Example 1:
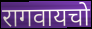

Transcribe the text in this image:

रागवायचो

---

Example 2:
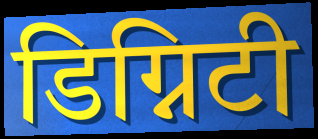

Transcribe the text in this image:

डिग्निटी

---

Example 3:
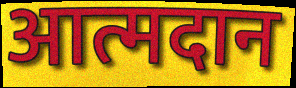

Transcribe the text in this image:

आत्मदान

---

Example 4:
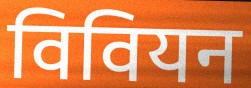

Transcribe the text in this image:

विवियन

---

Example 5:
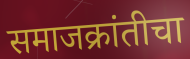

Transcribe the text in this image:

समाजक्रांतीचा